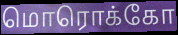
மொரொக்கோ